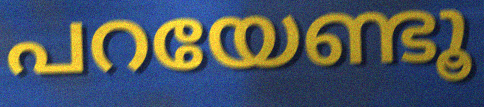
പറയേണ്ടൂ